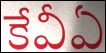
కేవీఏ